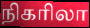
நிகரிலா